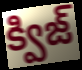
క్విజ్